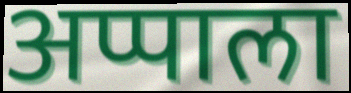
अप्पाला